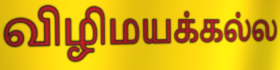
விழிமயக்கல்ல